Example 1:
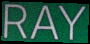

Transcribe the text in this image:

RAY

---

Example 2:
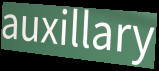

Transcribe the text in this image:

auxillary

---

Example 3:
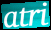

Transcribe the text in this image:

atri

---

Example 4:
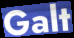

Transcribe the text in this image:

Galt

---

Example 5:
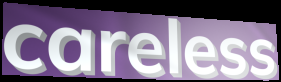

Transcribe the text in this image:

careless